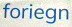
foriegn